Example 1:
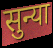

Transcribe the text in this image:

सुन्या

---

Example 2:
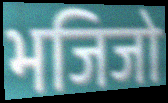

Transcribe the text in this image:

भजिजो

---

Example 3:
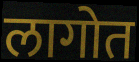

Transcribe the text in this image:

लागोत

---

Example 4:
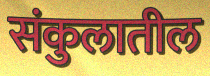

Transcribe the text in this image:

संकुलातील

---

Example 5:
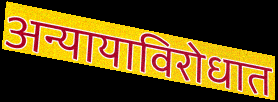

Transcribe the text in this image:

अन्यायाविरोधात